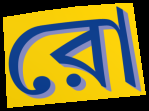
রো